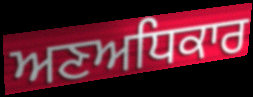
ਅਣਅਧਿਕਾਰ